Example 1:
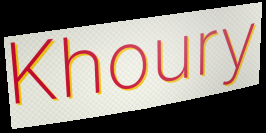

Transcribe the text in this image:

Khoury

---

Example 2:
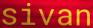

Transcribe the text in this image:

sivan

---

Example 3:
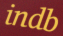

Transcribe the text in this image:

indb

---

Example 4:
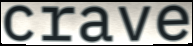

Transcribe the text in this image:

crave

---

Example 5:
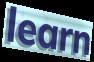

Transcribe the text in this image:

learn